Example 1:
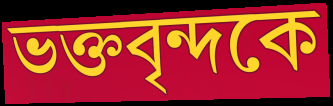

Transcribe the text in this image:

ভক্তবৃন্দকে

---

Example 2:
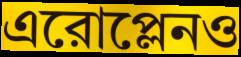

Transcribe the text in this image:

এরোপ্লেনও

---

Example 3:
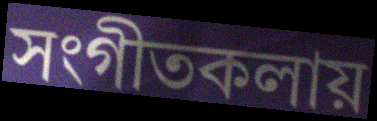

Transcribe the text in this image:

সংগীতকলায়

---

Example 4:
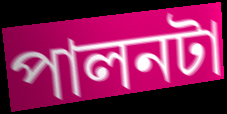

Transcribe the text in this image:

পালনটা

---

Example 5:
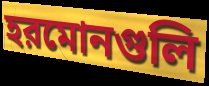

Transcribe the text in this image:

হরমোনগুলি